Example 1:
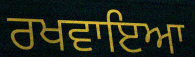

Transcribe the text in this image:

ਰਖਵਾਇਆ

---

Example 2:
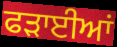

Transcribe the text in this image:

ਫੜਾਈਆਂ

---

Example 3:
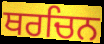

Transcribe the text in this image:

ਥਰਚਿਨ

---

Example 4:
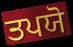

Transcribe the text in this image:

ਤਪਯੋ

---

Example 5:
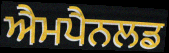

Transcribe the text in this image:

ਐਮਪੈਨਲਡ